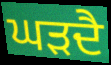
ਘੜਦੈ